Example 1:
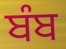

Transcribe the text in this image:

ਬੰਬ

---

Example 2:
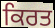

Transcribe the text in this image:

ਕਿਰਤ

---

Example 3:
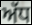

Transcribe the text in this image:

ਅੱਧ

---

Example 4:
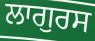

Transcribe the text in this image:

ਲਾਗੁਰਸ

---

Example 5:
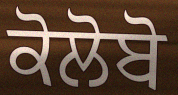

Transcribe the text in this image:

ਕੋਲੋਬੋ